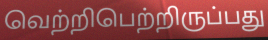
வெற்றிபெற்றிருப்பது